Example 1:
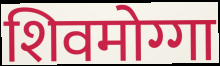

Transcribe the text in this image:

शिवमोग्गा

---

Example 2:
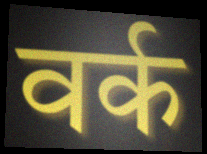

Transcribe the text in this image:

वर्क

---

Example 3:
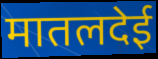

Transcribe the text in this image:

मातलदेई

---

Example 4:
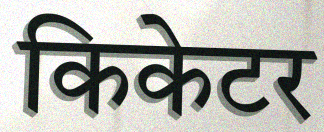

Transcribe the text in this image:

किकेटर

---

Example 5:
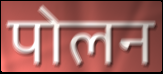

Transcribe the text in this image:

पोलन